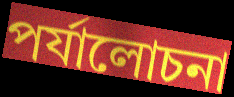
পৰ্যালোচনা